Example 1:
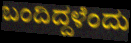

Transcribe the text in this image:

ಬಂದಿದ್ದಳೆಂದು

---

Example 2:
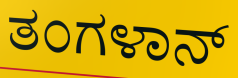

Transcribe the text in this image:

ತಂಗಳಾನ್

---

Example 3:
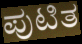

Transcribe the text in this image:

ಪುಟಿತ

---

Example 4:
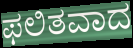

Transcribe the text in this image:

ಫಲಿತವಾದ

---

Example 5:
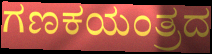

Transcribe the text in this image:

ಗಣಕಯಂತ್ರದ